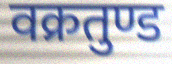
वक्रतुण्ड